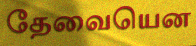
தேவையென